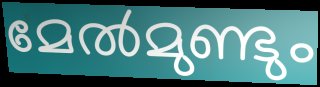
മേൽമുണ്ടും